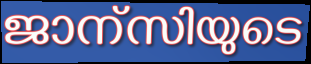
ജാന്സിയുടെ